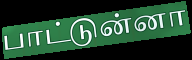
பாட்டுன்னா